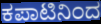
ಕಪಾಟಿನಿಂದ